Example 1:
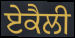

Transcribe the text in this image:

ਏਕੈਲੀ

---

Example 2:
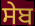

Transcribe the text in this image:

ਸੇਬ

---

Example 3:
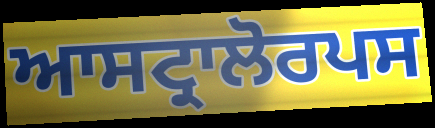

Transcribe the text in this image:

ਆਸਟ੍ਰਾਲੋਰਪਸ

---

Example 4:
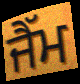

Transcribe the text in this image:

ਜੈੱਮ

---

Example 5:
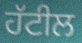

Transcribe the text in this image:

ਹੱਟੀਲ